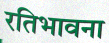
रतिभावना